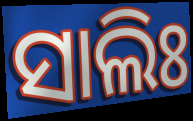
ସାଲିଃ